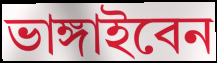
ভাঙ্গাইবেন